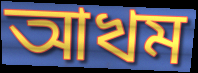
আখম